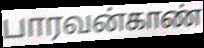
பாரவன்காண்